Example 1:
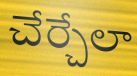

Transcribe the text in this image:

చేర్చేలా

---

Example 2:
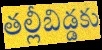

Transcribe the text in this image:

తల్లీబిడ్డకు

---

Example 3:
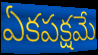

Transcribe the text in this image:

ఏకపక్షమే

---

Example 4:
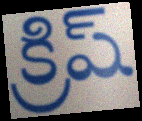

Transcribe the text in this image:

క్రిష్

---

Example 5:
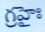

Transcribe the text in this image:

గ్రహైః